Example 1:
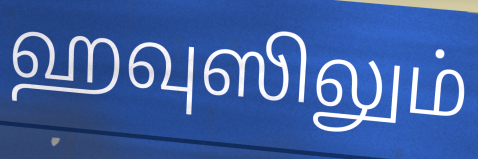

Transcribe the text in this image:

ஹவுஸிலும்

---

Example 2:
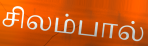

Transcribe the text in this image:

சிலம்பால்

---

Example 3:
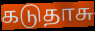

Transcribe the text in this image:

கடுதாசு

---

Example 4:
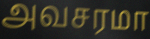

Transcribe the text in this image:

அவசரமா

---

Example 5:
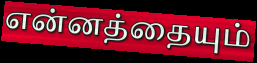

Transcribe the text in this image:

என்னத்தையும்